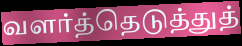
வளர்த்தெடுத்துத்